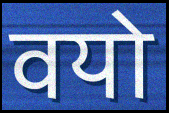
वयो